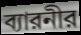
ব্যারনীর